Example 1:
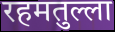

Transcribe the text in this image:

रहमतुल्ला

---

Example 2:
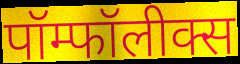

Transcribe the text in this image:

पॉम्फॉलीक्स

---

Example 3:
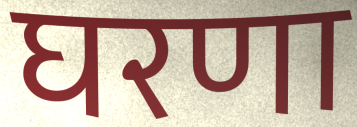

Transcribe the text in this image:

घरणा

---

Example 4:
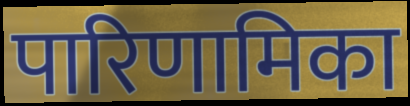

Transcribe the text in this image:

पारिणामिका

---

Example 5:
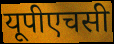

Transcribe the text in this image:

यूपीएचसी